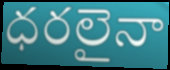
ధరలైనా